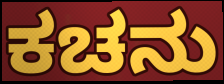
ಕಚನು